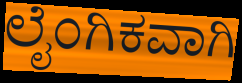
ಲೈಂಗಿಕವಾಗಿ